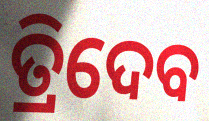
ତ୍ରିଦେବ